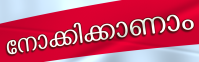
നോക്കിക്കാണാം